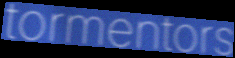
tormentors